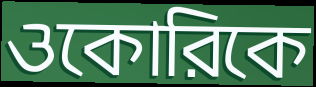
ওকোরিকে